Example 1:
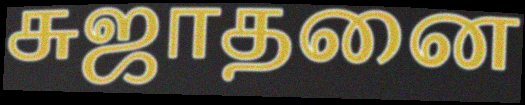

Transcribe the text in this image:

சுஜாதனை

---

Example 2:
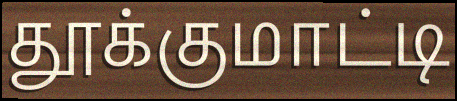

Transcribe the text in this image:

தூக்குமாட்டி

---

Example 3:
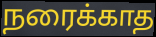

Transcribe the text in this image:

நரைக்காத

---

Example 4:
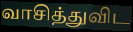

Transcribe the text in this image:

வாசித்துவிட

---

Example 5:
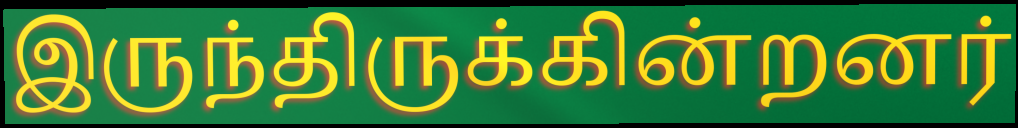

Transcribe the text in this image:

இருந்திருக்கின்றனர்